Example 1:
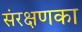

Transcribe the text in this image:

संरक्षणका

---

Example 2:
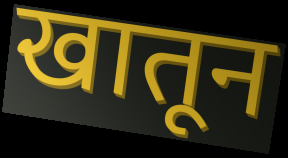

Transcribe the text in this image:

खातून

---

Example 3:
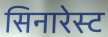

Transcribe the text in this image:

सिनारेस्ट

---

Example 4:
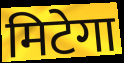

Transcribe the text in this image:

मिटेगा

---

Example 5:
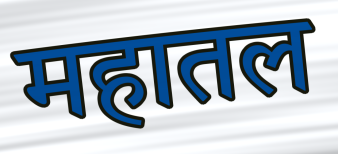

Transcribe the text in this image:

महातल